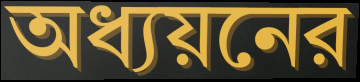
অধ্যয়নের